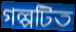
গল্পটিত